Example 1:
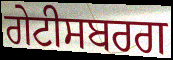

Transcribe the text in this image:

ਗੇਟੀਸਬਰਗ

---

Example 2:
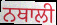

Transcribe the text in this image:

ਨਥਾਲੀ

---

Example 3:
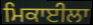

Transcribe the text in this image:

ਮਿਕਾਈਲਾ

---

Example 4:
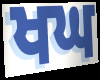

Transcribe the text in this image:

ਖਘ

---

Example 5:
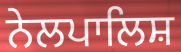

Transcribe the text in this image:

ਨੇਲਪਾਲਿਸ਼